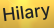
Hilary